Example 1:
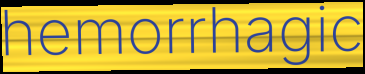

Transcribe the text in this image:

hemorrhagic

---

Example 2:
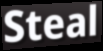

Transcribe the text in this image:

Steal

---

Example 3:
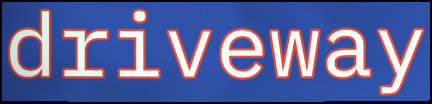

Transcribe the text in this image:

driveway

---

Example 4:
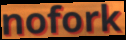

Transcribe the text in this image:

nofork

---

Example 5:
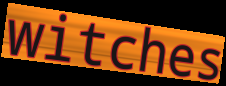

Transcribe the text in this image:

witches